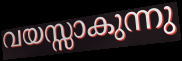
വയസ്സാകുന്നു